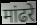
मांढरे